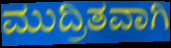
ಮುದ್ರಿತವಾಗಿ